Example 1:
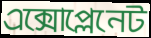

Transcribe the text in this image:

এক্সোপ্লেনেট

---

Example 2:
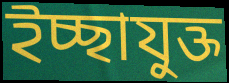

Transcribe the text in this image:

ইচ্ছাযুক্ত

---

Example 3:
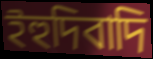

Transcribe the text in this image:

ইহুদিবাদি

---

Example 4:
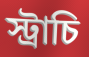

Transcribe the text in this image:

স্ট্রাচি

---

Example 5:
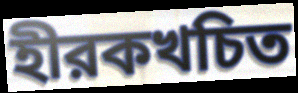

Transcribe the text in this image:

হীরকখচিত